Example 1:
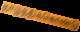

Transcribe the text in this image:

தாழ்த்திக்கொண்டு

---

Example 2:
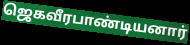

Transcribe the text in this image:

ஜெகவீரபாண்டியனார்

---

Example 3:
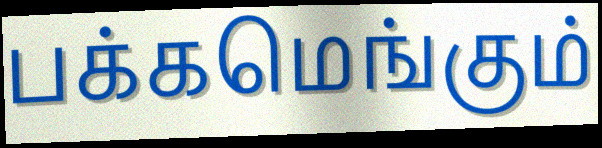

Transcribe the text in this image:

பக்கமெங்கும்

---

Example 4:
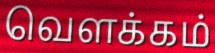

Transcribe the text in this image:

வெளக்கம்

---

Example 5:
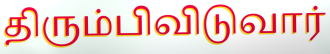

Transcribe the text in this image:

திரும்பிவிடுவார்